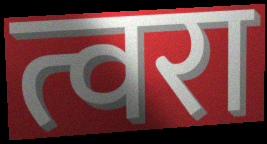
त्वरा